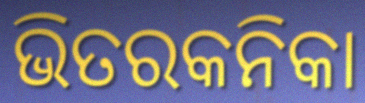
ଭିତରକନିକା